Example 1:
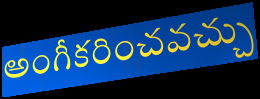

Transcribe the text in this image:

అంగీకరించవచ్చు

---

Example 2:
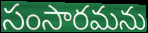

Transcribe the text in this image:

సంసారమను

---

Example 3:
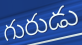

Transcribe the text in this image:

గురుడు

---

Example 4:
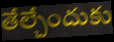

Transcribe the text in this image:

తేల్చేందుకు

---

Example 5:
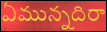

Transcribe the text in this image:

ఏమున్నదిరా